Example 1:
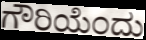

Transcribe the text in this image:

ಗೌರಿಯೆಂದು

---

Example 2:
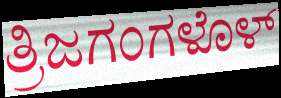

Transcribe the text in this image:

ತ್ರಿಜಗಂಗಳೊಳ್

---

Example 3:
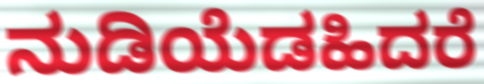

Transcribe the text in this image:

ನುಡಿಯೆಡಹಿದರೆ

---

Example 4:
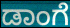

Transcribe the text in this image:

ಡಾಂಗೆ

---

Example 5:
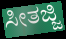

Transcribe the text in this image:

ಸೀತಜ್ಜಿ